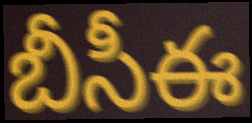
బీసీఈ